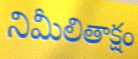
నిమీలితాక్షం